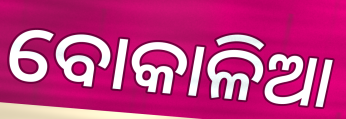
ବୋକାଳିଆ